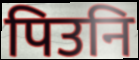
पिउनि